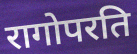
रागोपरति